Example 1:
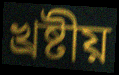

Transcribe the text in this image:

খ্রষ্টীয়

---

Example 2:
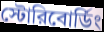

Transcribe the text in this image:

স্টোরিবোর্ডিং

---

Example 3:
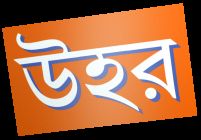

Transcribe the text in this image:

উহর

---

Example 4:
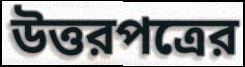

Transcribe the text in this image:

উত্তরপত্রের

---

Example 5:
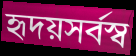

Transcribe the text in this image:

হৃদয়সর্বস্ব